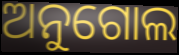
ଅନୁଗୋଲ